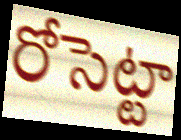
రోసెట్టా